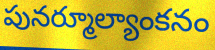
పునర్మూల్యాంకనం